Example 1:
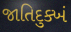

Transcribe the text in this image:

જાતિદુક્ખં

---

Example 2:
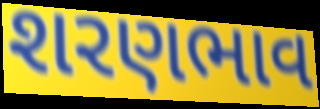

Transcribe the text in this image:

શરણભાવ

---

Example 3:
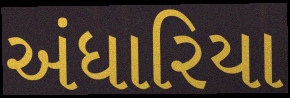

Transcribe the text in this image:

અંધારિયા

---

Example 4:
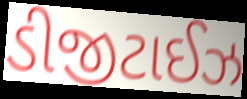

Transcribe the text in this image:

ડીજીટાઈઝ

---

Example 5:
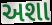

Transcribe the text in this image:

અશા